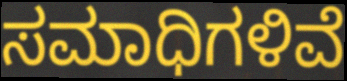
ಸಮಾಧಿಗಳಿವೆ